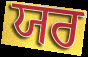
ਯਰ